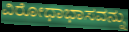
ವಿರೋಧಾಭಾಸವನ್ನು